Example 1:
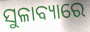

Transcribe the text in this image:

ସୁଳାବ୍ୟାରେ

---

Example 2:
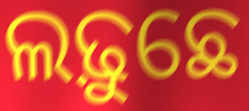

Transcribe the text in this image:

ଲଢ଼ୁଛେ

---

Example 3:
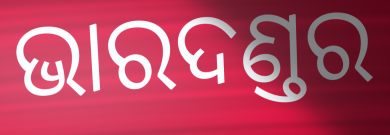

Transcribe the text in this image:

ଭାରଦଣ୍ଡର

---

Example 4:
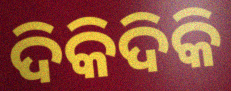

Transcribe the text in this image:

ଦିକିଦିକି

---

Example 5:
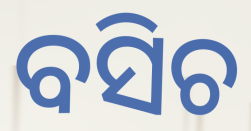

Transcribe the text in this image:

ବସିଚ